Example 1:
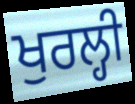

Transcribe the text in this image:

ਖੁਰਲ੍ਹੀ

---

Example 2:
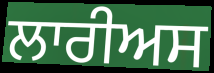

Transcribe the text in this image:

ਲਾਰੀਅਸ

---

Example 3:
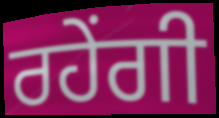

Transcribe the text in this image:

ਰਹੇਂਗੀ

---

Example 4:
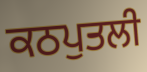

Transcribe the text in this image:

ਕਠਪੁਤਲੀ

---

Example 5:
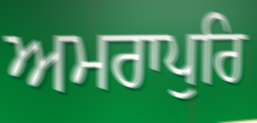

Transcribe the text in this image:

ਅਮਰਾਪੁਰਿ